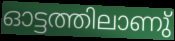
ഓട്ടത്തിലാണു്